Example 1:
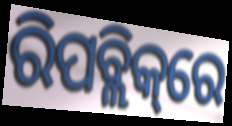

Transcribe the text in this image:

ରିପବ୍ଲିକ୍‌ରେ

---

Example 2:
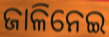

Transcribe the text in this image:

ଜାଳିନେଇ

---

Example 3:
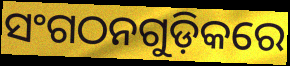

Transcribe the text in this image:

ସଂଗଠନଗୁଡ଼ିକରେ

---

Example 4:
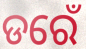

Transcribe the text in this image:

ଡରେଁ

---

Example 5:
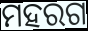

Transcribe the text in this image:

ମହରଗ